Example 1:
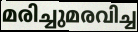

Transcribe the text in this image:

മരിച്ചുമരവിച്ച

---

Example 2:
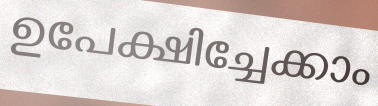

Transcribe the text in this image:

ഉപേക്ഷിച്ചേക്കാം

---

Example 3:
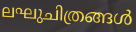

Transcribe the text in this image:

ലഘുചിത്രങ്ങൾ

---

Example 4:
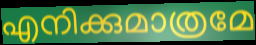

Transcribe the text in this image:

എനിക്കുമാത്രമേ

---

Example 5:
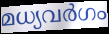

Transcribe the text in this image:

മധ്യവർഗം